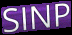
SINP